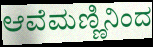
ಆವೆಮಣ್ಣಿನಿಂದ